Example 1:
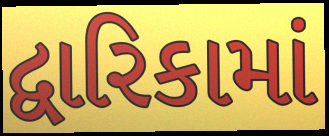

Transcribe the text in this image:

દ્વારિકામાં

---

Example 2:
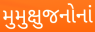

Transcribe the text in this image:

મુમુક્ષુજનોનાં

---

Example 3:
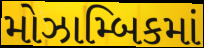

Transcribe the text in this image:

મોઝામ્બિકમાં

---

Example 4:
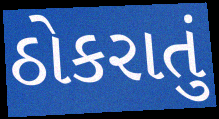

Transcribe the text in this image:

ઠોકરાતું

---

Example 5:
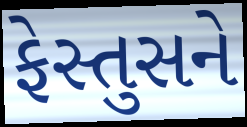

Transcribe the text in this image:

ફેસ્તુસને